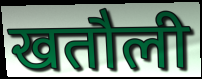
खतौली